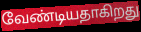
வேண்டியதாகிறது